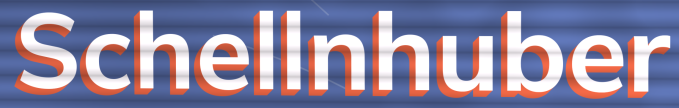
Schellnhuber